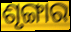
ଶୃଙ୍ଗାର